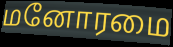
மனோரமை